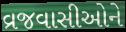
વ્રજવાસીઓને